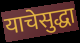
याचेसुद्धा